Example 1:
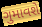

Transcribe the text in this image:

ગુમાવશે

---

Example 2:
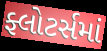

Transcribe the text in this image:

ફ્લોટર્સમાં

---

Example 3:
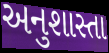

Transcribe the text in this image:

અનુશાસ્તા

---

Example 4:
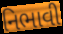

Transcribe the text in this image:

નિભાવી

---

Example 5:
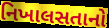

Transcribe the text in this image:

નિખાલસતાનો